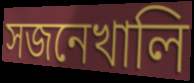
সজনেখালি